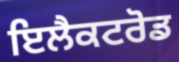
ਇਲੈਕਟਰੋਡ